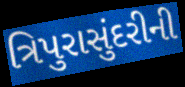
ત્રિપુરાસુંદરીની